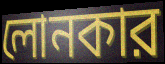
লোনকার